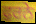
ਫੁਰਨੇ